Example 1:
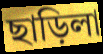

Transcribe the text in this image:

ছাড়িলা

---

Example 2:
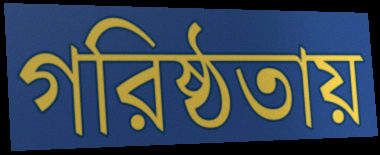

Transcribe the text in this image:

গরিষ্ঠতায়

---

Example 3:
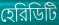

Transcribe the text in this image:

হেরিডিটি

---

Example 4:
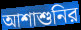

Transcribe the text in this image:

আশাশুনির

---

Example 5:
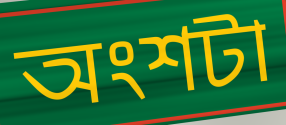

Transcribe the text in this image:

অংশটা